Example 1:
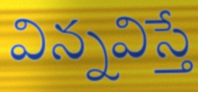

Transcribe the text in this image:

విన్నవిస్తే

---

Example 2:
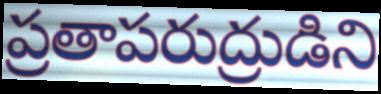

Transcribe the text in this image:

ప్రతాపరుద్రుడిని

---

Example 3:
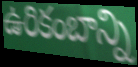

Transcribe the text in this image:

ఉరికంబాన్ని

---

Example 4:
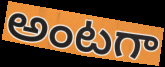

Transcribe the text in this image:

అంటగా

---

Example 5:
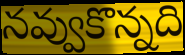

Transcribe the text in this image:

నవ్వుకొన్నది